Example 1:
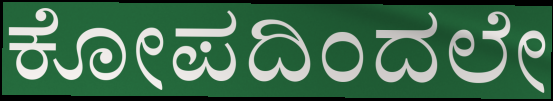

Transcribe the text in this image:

ಕೋಪದಿಂದಲೇ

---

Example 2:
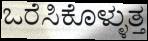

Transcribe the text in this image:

ಒರೆಸಿಕೊಳ್ಳುತ್ತ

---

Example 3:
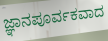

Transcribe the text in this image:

ಜ್ಞಾನಪೂರ್ವಕವಾದ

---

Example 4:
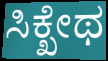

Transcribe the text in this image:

ಸಿಕ್ಖೇಥ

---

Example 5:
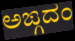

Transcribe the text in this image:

ಅಙ್ಗದಂ